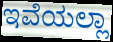
ಇವೆಯಲ್ಲಾ